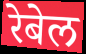
रेबेल